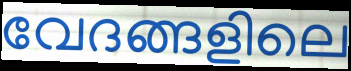
വേദങ്ങളിലെ